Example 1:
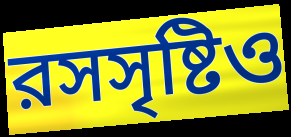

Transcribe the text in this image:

রসসৃষ্টিও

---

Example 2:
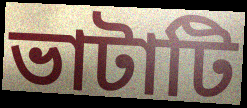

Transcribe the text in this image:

ভাটাটি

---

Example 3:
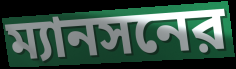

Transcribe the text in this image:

ম্যানসনের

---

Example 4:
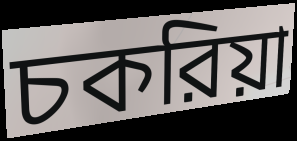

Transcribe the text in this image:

চকরিয়া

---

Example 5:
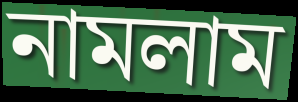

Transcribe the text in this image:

নামলাম